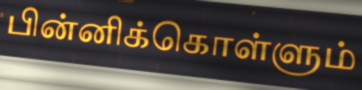
பின்னிக்கொள்ளும்